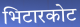
भिटारकोट